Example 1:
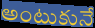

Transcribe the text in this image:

అంటుకునే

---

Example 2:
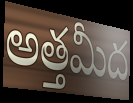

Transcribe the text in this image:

అత్తమీద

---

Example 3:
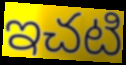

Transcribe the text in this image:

ఇచటి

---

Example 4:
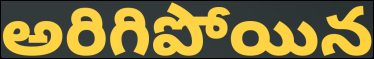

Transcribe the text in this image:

అరిగిపోయిన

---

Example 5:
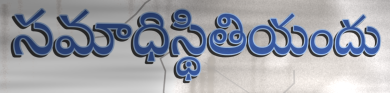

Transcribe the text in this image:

సమాధిస్థితియందు